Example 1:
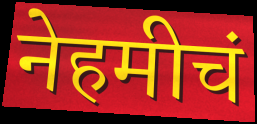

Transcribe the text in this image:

नेहमीचं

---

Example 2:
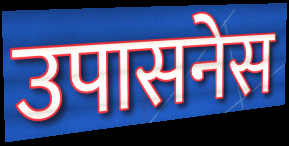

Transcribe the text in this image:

उपासनेस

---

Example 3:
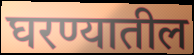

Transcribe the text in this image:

घरण्यातील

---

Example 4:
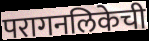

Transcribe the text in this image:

परागनलिकेची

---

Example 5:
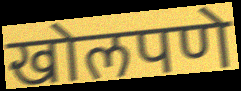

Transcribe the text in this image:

खोलपणे